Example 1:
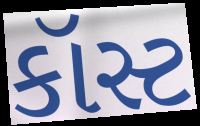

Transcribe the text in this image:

કૉસ્ટ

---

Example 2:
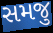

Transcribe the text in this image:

સમજુ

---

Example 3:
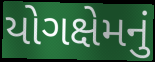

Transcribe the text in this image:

યોગક્ષેમનું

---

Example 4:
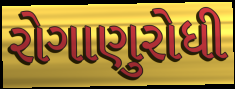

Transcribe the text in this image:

રોગાણુરોધી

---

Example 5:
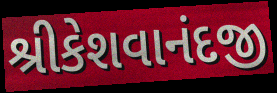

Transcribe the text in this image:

શ્રીકેશવાનંદજી